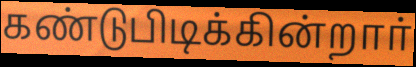
கண்டுபிடிக்கின்றார்